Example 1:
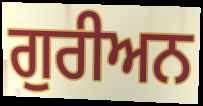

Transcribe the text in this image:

ਗੁਰੀਅਨ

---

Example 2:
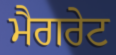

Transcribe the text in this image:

ਮੈਗਰੇਟ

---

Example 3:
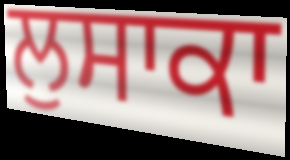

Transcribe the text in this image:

ਲੁਸਾਕਾ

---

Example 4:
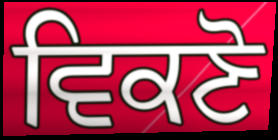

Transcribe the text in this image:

ਵਿਕਣੋ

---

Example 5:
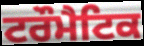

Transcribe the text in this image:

ਟਰੌਮੈਟਿਕ